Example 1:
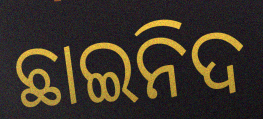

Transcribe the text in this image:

ଛାଇନିଦ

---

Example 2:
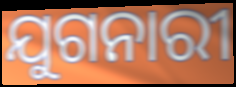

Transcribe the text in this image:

ଯୁଗନାରୀ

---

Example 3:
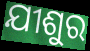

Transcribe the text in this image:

ଯୀଶୁର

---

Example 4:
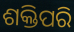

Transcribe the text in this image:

ଶକ୍ତିପରି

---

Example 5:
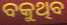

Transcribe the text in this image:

ବକୁଥିବ